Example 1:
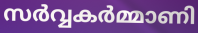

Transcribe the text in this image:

സർവ്വകർമ്മാണി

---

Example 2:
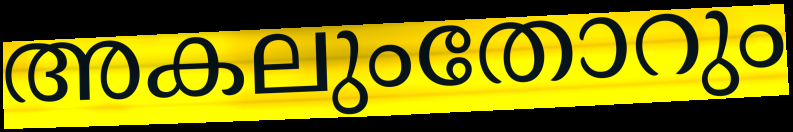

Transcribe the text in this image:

അകലുംതോറും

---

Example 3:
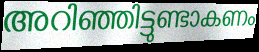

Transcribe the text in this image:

അറിഞ്ഞിട്ടുണ്ടാകണം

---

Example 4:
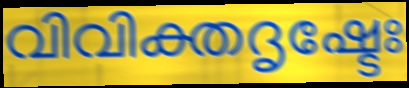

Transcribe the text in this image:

വിവിക്തദൃഷ്ടേഃ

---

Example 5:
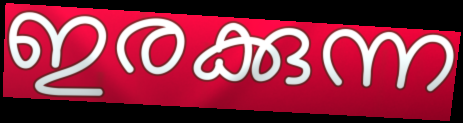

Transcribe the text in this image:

ഇരക്കുന്ന